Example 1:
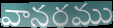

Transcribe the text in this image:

వానరము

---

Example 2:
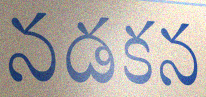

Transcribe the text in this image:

నడకన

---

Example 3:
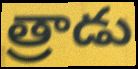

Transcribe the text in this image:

త్రాడు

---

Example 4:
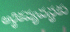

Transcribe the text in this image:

ఆర్థికవ్యవస్థకు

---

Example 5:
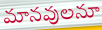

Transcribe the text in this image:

మానవులనూ